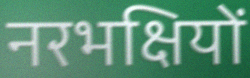
नरभक्षियों